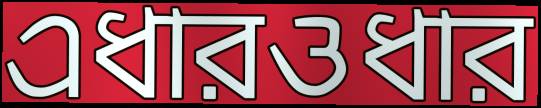
এধারওধার